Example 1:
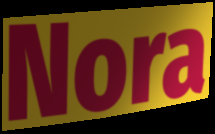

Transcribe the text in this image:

Nora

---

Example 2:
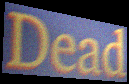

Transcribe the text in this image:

Dead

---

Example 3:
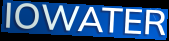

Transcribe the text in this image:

IOWATER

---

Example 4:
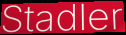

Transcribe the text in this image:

Stadler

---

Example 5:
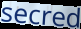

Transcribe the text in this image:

secred